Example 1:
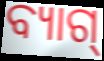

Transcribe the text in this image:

ବ୍ୟାଗ୍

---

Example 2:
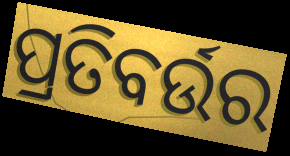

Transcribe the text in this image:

ପ୍ରତିବର୍ଉର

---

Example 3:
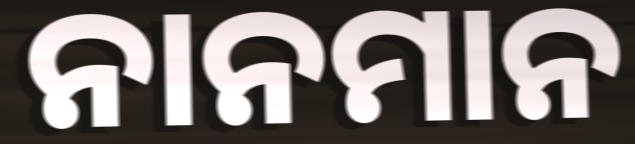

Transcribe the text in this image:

ନାନମାନ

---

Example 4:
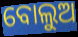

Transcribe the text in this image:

ବୋଲୁଅ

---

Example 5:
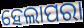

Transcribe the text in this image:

ହେଲାପରା